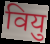
वियु